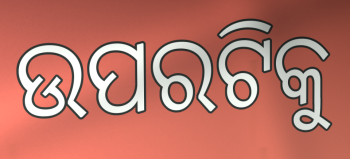
ଉପରଟିକୁ